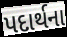
પદાર્થના